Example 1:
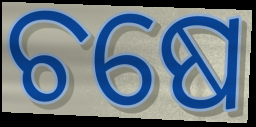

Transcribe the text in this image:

ଚଷେ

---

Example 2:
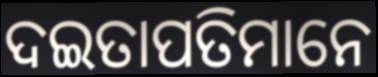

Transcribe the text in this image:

ଦଇତାପତିମାନେ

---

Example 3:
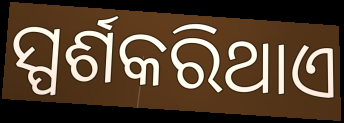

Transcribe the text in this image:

ସ୍ପର୍ଶକରିଥାଏ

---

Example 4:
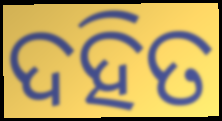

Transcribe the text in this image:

ଦହିତ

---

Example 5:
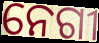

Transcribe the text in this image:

ନେଗୀ